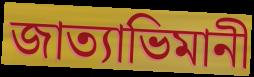
জাত্যাভিমানী